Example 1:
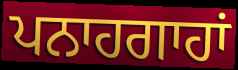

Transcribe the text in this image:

ਪਨਾਹਗਾਹਾਂ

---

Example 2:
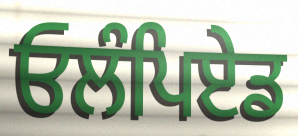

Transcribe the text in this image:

ਓਲੰਪਿਏਡ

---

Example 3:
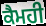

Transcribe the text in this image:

ਕੈਮਹੀ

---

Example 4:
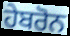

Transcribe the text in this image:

ਹੇਬਰੋਨ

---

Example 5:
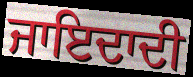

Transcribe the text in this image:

ਜਾਇਦਾਦੀ